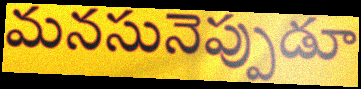
మనసునెప్పుడూ